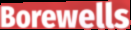
Borewells